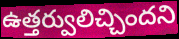
ఉత్తర్వులిచ్చిందని